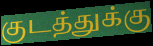
குடத்துக்கு